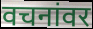
वचनांवर